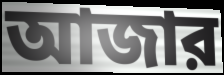
আজার